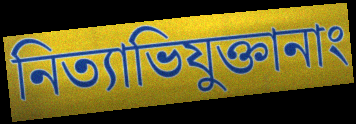
নিত্যাভিযুক্তানাং